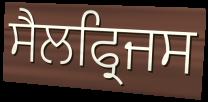
ਸੈਲਫ੍ਰਿਜਸ